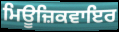
ਮਿਊਜ਼ਿਕਵਾਇਰ